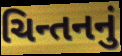
ચિન્તનનું